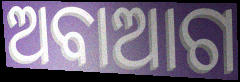
ଅବାଆଗ